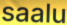
saalu